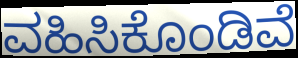
ವಹಿಸಿಕೊಂಡಿವೆ